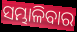
ସମ୍ଭାଳିବାର